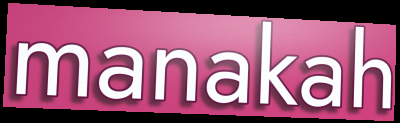
manakah